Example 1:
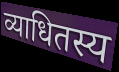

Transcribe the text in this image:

व्याधितस्य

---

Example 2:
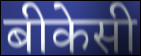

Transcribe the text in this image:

बीकेसी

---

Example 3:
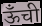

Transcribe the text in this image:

ऊँची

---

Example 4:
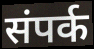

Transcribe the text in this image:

संपर्क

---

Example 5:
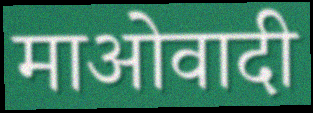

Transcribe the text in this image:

माओवादी